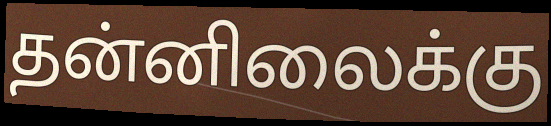
தன்னிலைக்கு